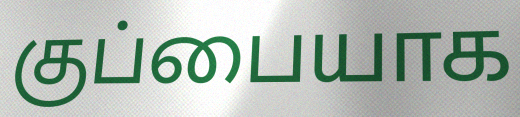
குப்பையாக